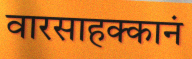
वारसाहक्कानं